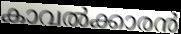
കാവൽക്കാരൻ